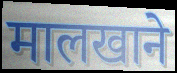
मालखाने